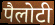
पैलोटी